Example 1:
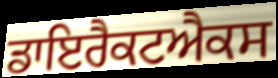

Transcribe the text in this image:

ਡਾਇਰੈਕਟਐਕਸ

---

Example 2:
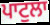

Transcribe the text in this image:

ਪਾਟੁਲਾ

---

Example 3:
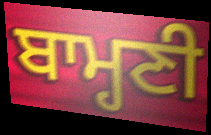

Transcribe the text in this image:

ਬਾਮ੍ਹਣੀ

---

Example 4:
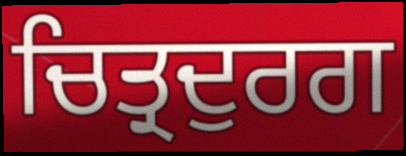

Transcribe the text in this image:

ਚਿਤ੍ਰਦੁਰਗ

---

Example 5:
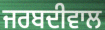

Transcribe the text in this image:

ਜਰਬਦੀਵਾਲ